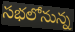
సభలోనున్న